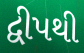
દ્વીપથી